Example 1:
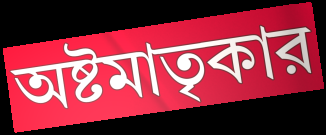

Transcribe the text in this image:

অষ্টমাতৃকার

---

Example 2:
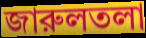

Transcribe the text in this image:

জারুলতলা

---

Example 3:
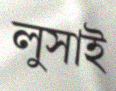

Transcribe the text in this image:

লুসাই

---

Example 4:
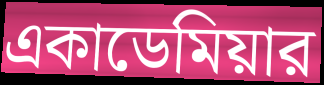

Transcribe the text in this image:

একাডেমিয়ার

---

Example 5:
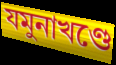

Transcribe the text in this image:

যমুনাখণ্ডে